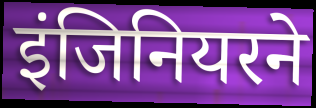
इंजिनियरने